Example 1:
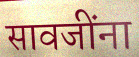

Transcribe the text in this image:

सावजींना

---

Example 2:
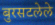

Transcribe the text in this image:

बुरसटलेले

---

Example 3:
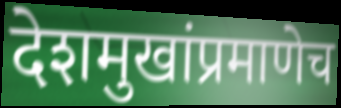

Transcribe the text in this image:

देशमुखांप्रमाणेच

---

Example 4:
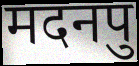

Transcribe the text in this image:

मदनपु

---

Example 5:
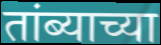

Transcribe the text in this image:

तांब्याच्या